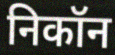
निकॉन